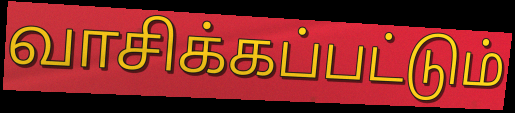
வாசிக்கப்பட்டும்